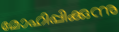
മോഹിപ്പിക്കുന്നു